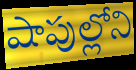
షాపుల్లోని